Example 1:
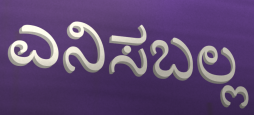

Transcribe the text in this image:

ಎನಿಸಬಲ್ಲ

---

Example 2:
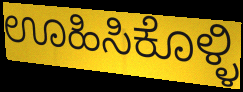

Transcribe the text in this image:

ಊಹಿಸಿಕೊಳ್ಳಿ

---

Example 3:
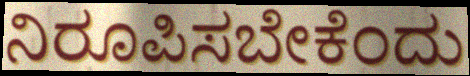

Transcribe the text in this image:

ನಿರೂಪಿಸಬೇಕೆಂದು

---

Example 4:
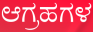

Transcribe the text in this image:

ಆಗ್ರಹಗಳ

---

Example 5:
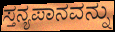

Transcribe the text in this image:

ಸ್ತನ್ಯಪಾನವನ್ನು